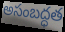
అసంబద్ధత